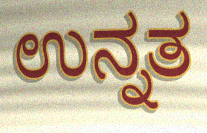
ಉನ್ನತ